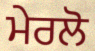
ਮੇਰਲੋ